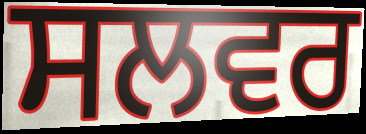
ਸਲਵਰ